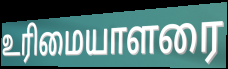
உரிமையாளரை